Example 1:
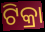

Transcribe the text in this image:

ଟିକ୍ରା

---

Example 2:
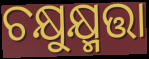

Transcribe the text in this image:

ଚକ୍ଷୁକ୍ଷ୍ମତ୍ତା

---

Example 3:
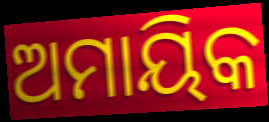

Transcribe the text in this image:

ଅମାୟିକ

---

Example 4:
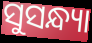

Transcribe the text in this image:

ସୁସନ୍ଧ୍ୟା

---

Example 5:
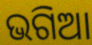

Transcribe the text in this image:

ଭଗିଆ